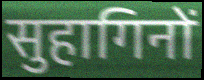
सुहागिनों